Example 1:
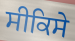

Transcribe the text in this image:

ਸੀਕਿਸੇ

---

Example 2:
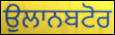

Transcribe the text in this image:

ਉਲਾਨਬਟੋਰ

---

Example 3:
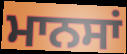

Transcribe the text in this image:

ਮਾਨਸਾਂ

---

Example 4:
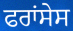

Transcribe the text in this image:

ਫਰਾਂਸੇਸ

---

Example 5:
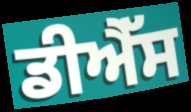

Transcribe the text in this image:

ਡੀਐੱਸ